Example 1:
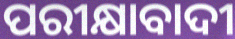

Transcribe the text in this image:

ପରୀକ୍ଷାବାଦୀ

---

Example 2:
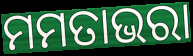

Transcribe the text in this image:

ମମତାଭରା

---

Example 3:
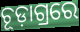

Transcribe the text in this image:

ଚୂଡ଼ାଗ୍ରରେ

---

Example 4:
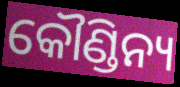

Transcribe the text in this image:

କୌଣ୍ଡିନ୍ୟ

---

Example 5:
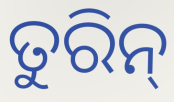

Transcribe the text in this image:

ତୁରିନ୍